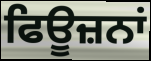
ਫਿਊਜ਼ਨਾਂ